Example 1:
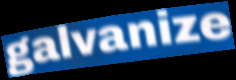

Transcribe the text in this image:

galvanize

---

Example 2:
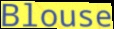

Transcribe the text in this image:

Blouse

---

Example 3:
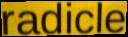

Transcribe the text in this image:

radicle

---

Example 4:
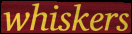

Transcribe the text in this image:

whiskers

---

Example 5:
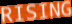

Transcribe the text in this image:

RISING